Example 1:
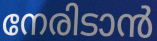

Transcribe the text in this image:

നേരിടാൻ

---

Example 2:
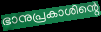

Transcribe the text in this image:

ഭാനുപ്രകാശിന്റെ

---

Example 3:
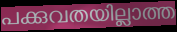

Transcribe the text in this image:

പക്കുവതയില്ലാത്ത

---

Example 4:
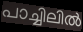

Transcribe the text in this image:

പാച്ചിലിൽ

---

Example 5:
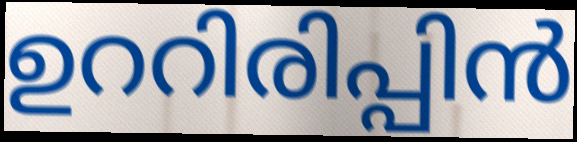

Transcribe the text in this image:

ഉററിരിപ്പിൻ